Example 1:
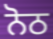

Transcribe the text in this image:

ਨੋਠ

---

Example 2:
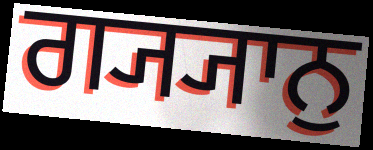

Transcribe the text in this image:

ਗ੍ਯ੍ਯਾਨੁ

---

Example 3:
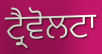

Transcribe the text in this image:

ਟ੍ਰੈਵੋਲਟਾ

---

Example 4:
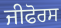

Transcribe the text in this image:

ਜੀਫੋਰਸ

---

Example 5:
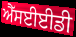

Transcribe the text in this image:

ਐੱਸਈਈਡੀ